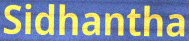
Sidhantha